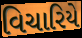
વિચારિયે